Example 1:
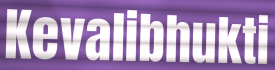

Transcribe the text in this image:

Kevalibhukti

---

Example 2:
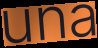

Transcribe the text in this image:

una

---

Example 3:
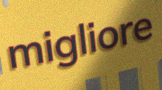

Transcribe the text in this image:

migliore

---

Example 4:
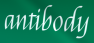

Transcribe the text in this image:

antibody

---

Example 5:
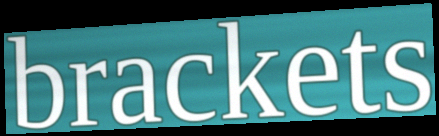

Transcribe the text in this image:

brackets